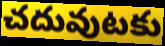
చదువుటకు